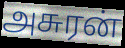
அசுரன்